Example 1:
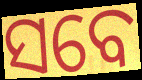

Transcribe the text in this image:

ସବେ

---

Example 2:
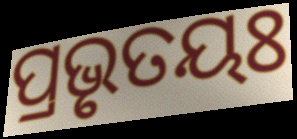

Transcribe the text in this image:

ପ୍ରଭୃତୟଃ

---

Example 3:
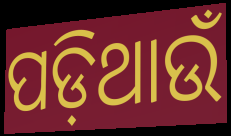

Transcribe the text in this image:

ପଡ଼ିଥାଉଁ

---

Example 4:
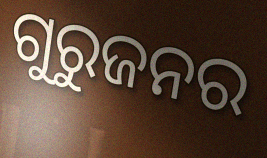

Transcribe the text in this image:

ଗୁରୁଜନର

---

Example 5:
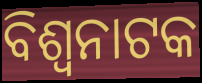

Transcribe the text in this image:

ବିଶ୍ୱନାଟକ